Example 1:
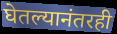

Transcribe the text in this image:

घेतल्यानंतरही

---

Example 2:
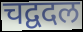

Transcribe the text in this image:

चद्वदल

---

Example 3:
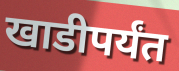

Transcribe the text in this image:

खाडीपर्यंत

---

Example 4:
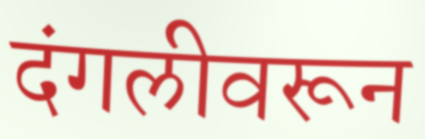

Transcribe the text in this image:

दंगलीवरून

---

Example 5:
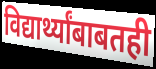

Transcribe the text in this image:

विद्यार्थ्यांबाबतही